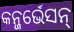
କନ୍ଜର୍ଭେସନ୍